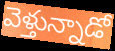
వెళ్తున్నాడో